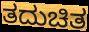
ತದುಚಿತ